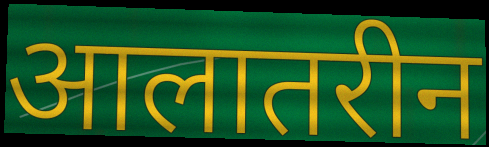
आलातरीन